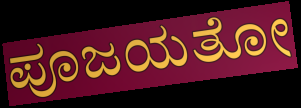
ಪೂಜಯತೋ